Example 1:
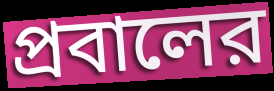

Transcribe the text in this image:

প্রবালের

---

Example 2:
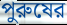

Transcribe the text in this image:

পুরুষের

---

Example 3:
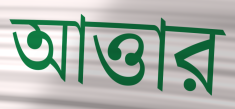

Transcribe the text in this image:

আত্তার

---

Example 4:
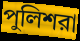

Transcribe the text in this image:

পুলিশরা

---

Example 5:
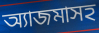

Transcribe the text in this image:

অ্যাজমাসহ